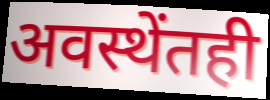
अवस्थेंतही